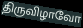
திருவிழாவோ